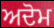
ਅਦੋਮ